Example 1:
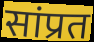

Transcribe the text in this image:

सांप्रत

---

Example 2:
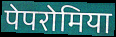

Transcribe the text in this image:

पेपरोमिया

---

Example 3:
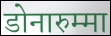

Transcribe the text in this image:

डोनारुम्मा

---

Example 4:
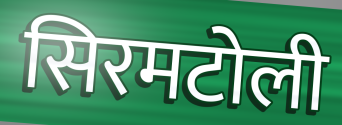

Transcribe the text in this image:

सिरमटोली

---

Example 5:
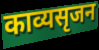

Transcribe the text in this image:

काव्यसृजन